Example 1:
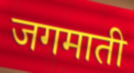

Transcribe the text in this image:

जगमाती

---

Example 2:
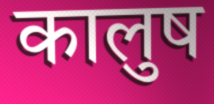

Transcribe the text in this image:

कालुष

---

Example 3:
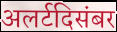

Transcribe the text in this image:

अलर्टदिसंबर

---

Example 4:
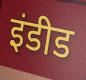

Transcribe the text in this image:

इंडीड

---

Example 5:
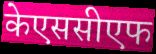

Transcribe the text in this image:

केएससीएफ